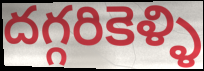
దగ్గరికెళ్ళి